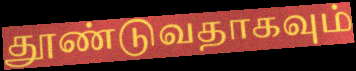
தூண்டுவதாகவும்